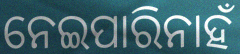
ନେଇପାରିନାହଁ